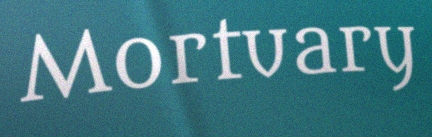
Mortuary